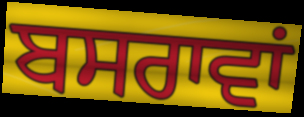
ਬਸਰਾਵਾਂ